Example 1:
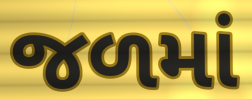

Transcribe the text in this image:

જળમાં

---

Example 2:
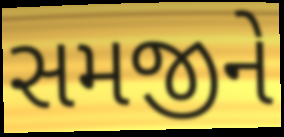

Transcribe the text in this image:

સમજીને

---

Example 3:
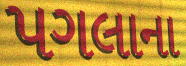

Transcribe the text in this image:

પગલાના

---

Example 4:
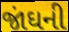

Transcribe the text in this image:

જાંઘની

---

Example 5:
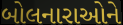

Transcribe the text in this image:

બોલનારાઓને